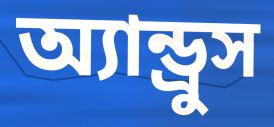
অ্যান্ড্রুস